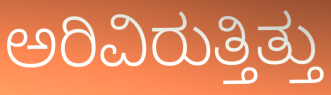
ಅರಿವಿರುತ್ತಿತ್ತು